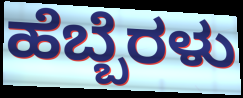
ಹೆಬ್ಬೆರಳು